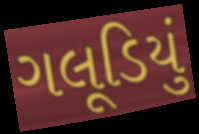
ગલૂડિયું